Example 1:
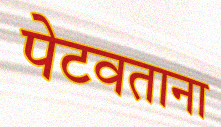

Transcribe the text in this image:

पेटवताना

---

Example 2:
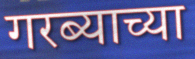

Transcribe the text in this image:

गरब्याच्या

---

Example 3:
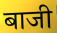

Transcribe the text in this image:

बाजी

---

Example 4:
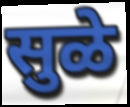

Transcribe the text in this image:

सुळे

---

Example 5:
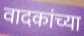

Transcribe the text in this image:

वादकांच्या